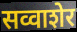
सव्वाशेर